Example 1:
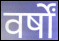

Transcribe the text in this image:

वर्षों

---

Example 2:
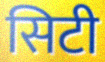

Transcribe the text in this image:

सिटी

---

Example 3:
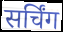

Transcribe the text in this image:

सर्चिंग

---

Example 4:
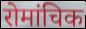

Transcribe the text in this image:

रोमांचिक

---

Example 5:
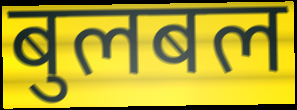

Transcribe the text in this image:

बुलबल